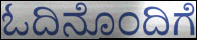
ಓದಿನೊಂದಿಗೆ